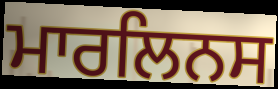
ਮਾਰਲਿਨਸ